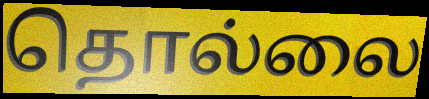
தொல்லை